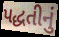
પદ્ધતીનું